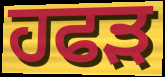
ਹਫੜ